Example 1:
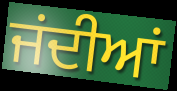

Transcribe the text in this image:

ਜਂਦੀਆਂ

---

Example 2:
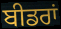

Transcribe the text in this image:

ਬੀਡਰਾਂ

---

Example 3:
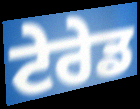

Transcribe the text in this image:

ਟੇਰੇਡ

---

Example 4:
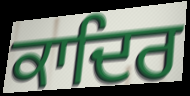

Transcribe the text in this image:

ਕਾਦਿਰ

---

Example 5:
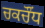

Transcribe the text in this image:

ਚਕਚੌਂਧ